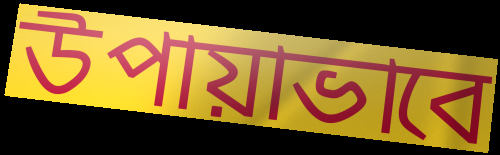
উপায়াভাবে